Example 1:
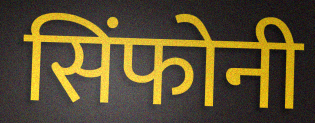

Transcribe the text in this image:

सिंफोनी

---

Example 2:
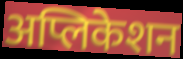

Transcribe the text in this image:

अप्लिकेशन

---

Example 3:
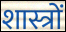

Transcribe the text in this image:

शास्त्रों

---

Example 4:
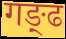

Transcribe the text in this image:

गङ्ढ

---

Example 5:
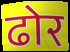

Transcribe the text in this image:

ढोर